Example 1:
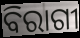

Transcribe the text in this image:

ବିରାଗୀ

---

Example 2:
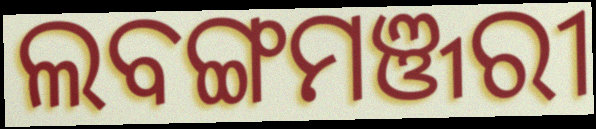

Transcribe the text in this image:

ଲବଙ୍ଗମଞ୍ଜରୀ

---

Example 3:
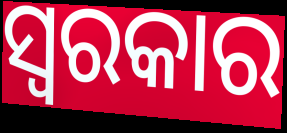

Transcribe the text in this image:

ସ୍ୱରକାର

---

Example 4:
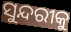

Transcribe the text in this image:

ସୁନ୍ଦରୀକୁ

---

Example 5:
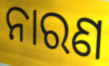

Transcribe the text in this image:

ନାରଣ